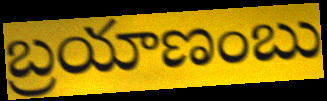
బ్రయాణంబు